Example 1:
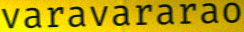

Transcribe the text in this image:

varavararao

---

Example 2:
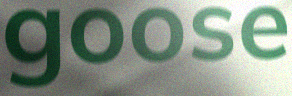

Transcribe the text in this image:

goose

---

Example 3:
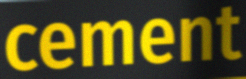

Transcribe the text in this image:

cement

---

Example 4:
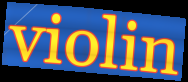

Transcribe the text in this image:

violin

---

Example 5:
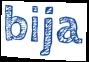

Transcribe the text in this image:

bija